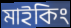
মাইকিং